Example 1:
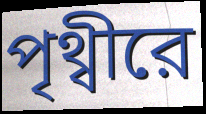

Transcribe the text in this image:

পৃথ্বীরে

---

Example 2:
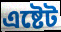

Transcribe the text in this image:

এষ্টেট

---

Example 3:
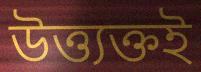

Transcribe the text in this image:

উত্ত্যক্তই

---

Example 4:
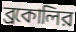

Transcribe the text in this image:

ব্রকোলির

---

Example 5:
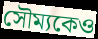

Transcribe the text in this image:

সৌম্যকেও